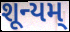
શૂન્યમ્